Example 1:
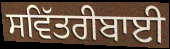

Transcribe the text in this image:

ਸਵਿੱਤਰੀਬਾਈ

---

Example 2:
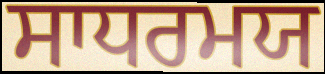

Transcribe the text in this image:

ਸਾਧਰਮਯ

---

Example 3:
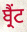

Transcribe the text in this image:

ਬ੍ਰੈਂਟ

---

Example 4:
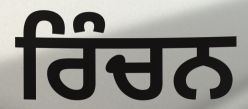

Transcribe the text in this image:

ਰਿੰਚਨ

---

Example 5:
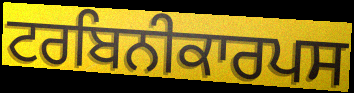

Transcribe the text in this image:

ਟਰਬਿਨੀਕਾਰਪਸ